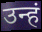
उन्हं